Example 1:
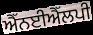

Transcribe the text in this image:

ਐੱਨਈਐੱਲਪੀ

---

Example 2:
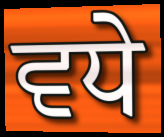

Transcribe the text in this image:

ਵਧੇ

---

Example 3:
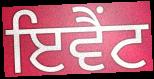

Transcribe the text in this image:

ਇਵੈਂਟ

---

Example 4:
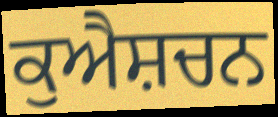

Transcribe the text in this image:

ਕੁਐਸ਼ਚਨ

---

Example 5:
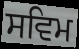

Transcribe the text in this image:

ਸਵਿਮ